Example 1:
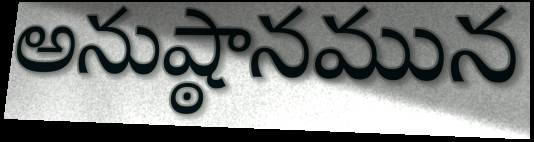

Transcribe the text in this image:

అనుష్ఠానమున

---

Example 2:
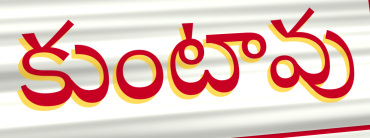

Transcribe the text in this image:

కుంటావు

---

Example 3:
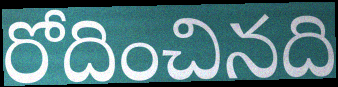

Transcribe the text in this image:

రోదించినది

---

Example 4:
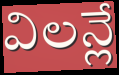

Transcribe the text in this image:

విలన్లే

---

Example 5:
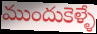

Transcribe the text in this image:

ముందుకెళ్ళే